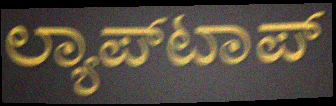
ಲ್ಯಾಪ್‌ಟಾಪ್